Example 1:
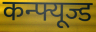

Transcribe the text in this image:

कन्फ्यूज्ड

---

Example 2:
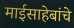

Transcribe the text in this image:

माईसाहेबांचे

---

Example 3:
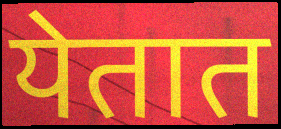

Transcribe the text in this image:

येतात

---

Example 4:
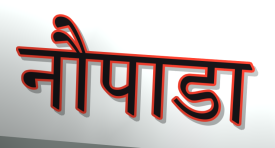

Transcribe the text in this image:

नौपाडा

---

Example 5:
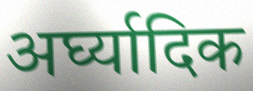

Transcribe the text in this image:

अर्घ्यादिक